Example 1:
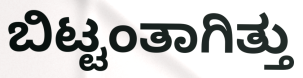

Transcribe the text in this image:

ಬಿಟ್ಟಂತಾಗಿತ್ತು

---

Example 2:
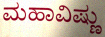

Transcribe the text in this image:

ಮಹಾವಿಷ್ಣು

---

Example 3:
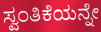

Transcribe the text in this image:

ಸ್ವಂತಿಕೆಯನ್ನೇ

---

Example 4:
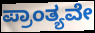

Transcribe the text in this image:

ಪ್ರಾಂತ್ಯವೇ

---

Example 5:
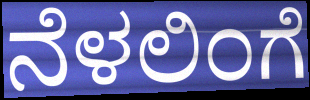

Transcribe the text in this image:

ನೆಳಲಿಂಗೆ